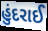
હુંદરાઈ